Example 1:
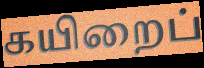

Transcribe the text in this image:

கயிறைப்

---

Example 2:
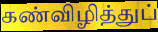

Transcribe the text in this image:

கண்விழித்துப்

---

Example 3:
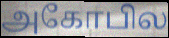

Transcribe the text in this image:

அகோபில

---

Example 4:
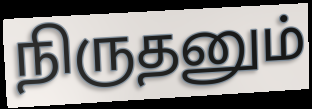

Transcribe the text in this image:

நிருதனும்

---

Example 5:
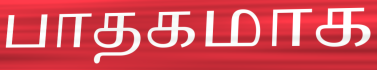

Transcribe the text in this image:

பாதகமாக